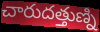
చారుదత్తుణ్ని